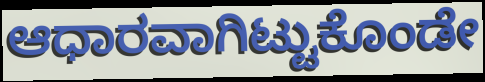
ಆಧಾರವಾಗಿಟ್ಟುಕೊಂಡೇ